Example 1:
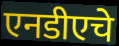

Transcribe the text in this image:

एनडीएचे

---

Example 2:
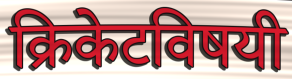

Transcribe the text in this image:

क्रिकेटविषयी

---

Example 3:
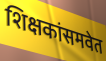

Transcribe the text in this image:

शिक्षकांसमवेत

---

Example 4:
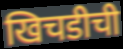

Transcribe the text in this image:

खिचडीची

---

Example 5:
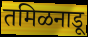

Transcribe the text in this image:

तमिळनाडू